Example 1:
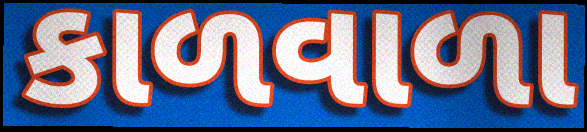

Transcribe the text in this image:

કાળવાળા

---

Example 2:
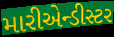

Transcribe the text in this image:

મારીએન્ડીસ્ટર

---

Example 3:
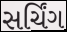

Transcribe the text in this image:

સર્ચિંગ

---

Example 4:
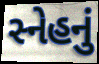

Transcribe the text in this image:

સ્નેહનું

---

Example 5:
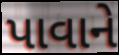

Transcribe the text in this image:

પાવાને